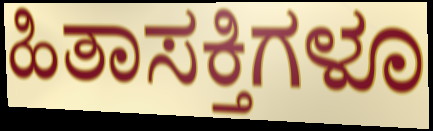
ಹಿತಾಸಕ್ತಿಗಳೂ